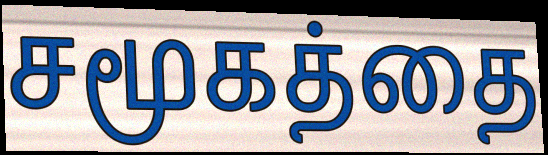
சமூகத்தை